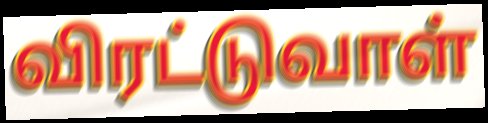
விரட்டுவாள்